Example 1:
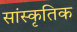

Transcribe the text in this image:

सांस्‍कृतिक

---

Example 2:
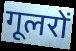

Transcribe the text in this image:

गूलरों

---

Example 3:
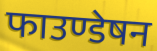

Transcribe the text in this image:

फाउण्डेषन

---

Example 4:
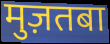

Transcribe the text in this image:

मुज़तबा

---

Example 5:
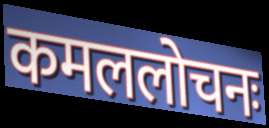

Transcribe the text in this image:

कमललोचनः